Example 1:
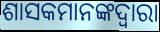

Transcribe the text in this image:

ଶାସକମାନଙ୍କଦ୍ୱାରା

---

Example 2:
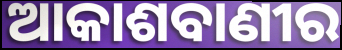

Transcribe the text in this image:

ଆକାଶବାଣୀର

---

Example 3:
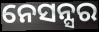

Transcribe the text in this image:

ନେସନ୍ସର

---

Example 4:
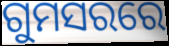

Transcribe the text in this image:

ଗୁମସରରେ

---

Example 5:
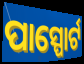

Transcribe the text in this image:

ପାସ୍ପୋର୍ଟ